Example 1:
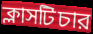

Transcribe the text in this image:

ক্লাসটিচার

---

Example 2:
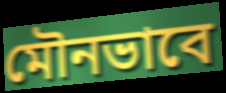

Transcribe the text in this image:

মৌনভাবে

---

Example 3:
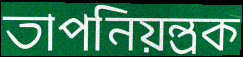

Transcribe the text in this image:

তাপনিয়ন্ত্রক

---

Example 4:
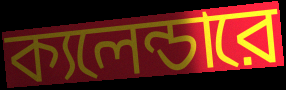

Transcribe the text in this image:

ক্যলেন্ডারে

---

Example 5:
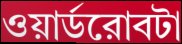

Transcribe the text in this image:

ওয়ার্ডরোবটা